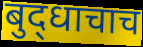
बुद्धाचाच